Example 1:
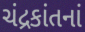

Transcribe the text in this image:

ચંદ્રકાંતનાં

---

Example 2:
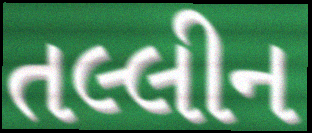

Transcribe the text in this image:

તલ્લીન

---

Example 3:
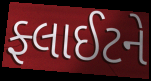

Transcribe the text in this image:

ફ્લાઈટને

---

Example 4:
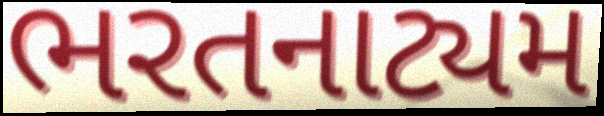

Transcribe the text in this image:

ભરતનાટ્યમ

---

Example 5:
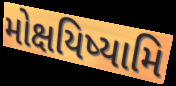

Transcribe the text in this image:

મોક્ષયિષ્યામિ